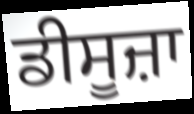
ਡੀਸੂਜ਼ਾ